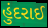
હુંદરાઈ